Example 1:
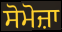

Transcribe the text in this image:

ਸੋਮੋਜ਼ਾ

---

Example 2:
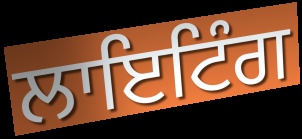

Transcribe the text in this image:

ਲਾਇਟਿੰਗ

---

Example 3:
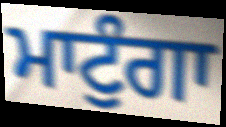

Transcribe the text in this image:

ਮਾਟੁੰਗਾ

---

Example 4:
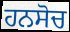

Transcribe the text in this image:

ਹਨਸੋਚ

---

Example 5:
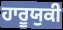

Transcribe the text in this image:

ਹਾਰੂਯੁਕੀ